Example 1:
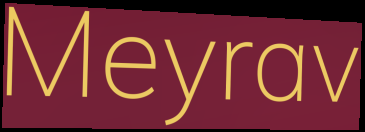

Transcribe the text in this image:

Meyrav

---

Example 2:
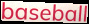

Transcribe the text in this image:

baseball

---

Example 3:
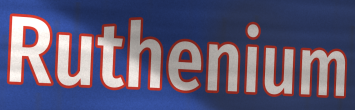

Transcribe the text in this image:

Ruthenium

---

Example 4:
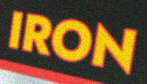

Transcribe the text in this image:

IRON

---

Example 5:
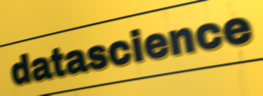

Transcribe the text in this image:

datascience